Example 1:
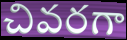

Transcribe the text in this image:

చివరగా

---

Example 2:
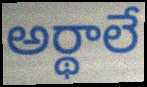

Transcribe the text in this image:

అర్థాలే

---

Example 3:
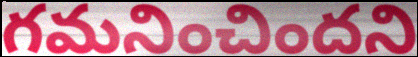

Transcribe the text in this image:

గమనించిందని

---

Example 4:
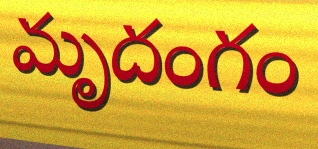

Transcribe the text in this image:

మృదంగం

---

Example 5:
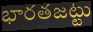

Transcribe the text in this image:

భారతజట్టు